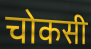
चोकसी